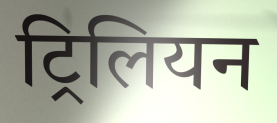
ट्रिलियन